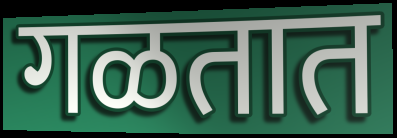
गळतात